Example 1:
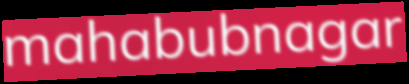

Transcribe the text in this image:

mahabubnagar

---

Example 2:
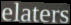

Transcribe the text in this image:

elaters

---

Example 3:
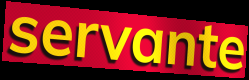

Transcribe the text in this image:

servante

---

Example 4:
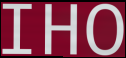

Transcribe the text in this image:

IHO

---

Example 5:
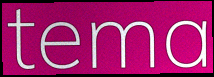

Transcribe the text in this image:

tema